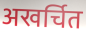
अखर्चित